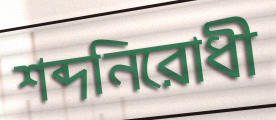
শব্দনিরোধী